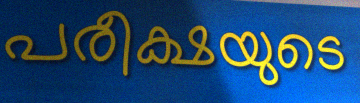
പരീക്ഷയുടെ